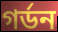
গর্ডন